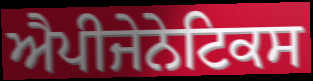
ਐਪੀਜੇਨੇਟਿਕਸ